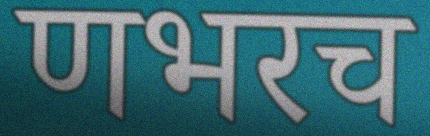
णभरच